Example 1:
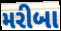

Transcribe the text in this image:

મરીબા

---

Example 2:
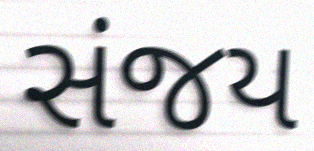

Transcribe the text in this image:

સંજય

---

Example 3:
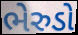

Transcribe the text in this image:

ભેરુડો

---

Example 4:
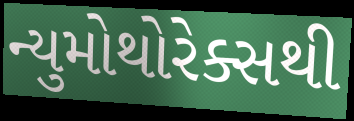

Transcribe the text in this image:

ન્યુમોથોરેક્સથી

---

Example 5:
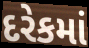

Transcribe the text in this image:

દરેકમાં